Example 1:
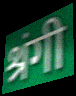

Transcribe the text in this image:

श्रंगी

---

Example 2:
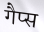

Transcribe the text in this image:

गैप्स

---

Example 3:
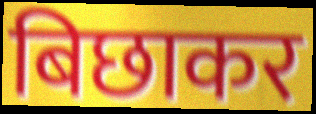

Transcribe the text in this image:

बिछाकर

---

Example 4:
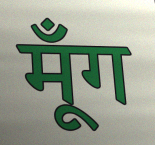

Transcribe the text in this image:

मूँग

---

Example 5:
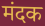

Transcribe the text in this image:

मंदक